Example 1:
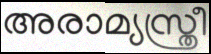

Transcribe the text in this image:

അരാമ്യസ്ത്രീ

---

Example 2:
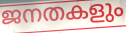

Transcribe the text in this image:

ജനതകളും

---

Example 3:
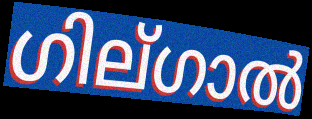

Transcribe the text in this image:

ഗില്ഗാൽ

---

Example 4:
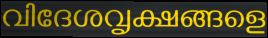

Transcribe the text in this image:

വിദേശവൃക്ഷങ്ങളെ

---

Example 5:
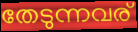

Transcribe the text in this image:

തേടുന്നവര്